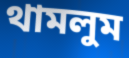
থামলুম